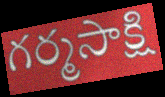
గర్మసాక్షి